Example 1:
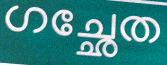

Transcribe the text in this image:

ഗച്ഛേത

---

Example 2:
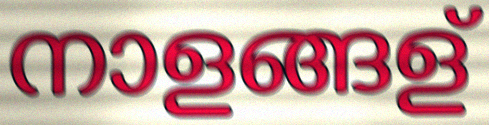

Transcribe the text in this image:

നാളങ്ങള്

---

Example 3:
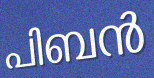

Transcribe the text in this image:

പിബൻ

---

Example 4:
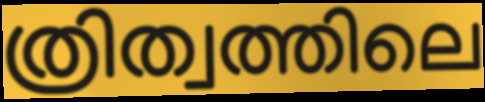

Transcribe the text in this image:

ത്രിത്വത്തിലെ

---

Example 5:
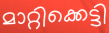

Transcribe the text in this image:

മാറ്റിക്കെട്ടി